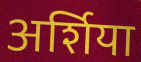
अर्शिया